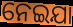
ନେଇଯା